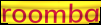
roomba